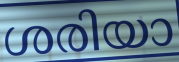
ശരിയാ